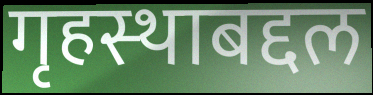
गृहस्थाबद्दल